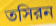
তসিরন